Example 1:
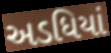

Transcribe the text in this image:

અડધિયાં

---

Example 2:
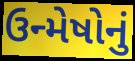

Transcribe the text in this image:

ઉન્મેષોનું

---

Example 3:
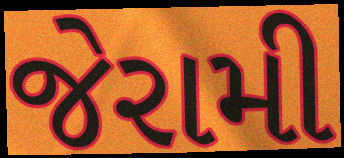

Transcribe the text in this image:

જેરામી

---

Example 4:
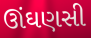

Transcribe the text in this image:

ઊંઘણસી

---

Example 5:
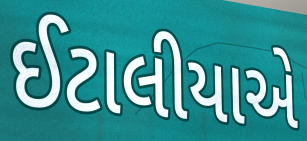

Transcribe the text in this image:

ઈટાલીયાએ